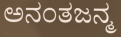
ಅನಂತಜನ್ಮ